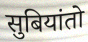
सुबियांतो